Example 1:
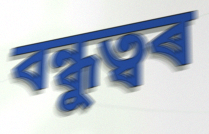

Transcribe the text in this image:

বন্ধুত্বৰ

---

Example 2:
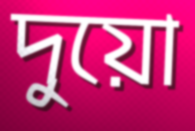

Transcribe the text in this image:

দুয়ো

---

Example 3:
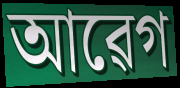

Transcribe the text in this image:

আৱেগ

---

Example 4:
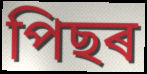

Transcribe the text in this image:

পিছৰ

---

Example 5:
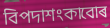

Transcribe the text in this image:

বিপদাশংকাবোৰ